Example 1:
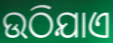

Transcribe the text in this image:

ଉଠିଯାଏ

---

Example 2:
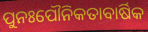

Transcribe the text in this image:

ପୁନଃପୌନିକତାବାର୍ଷିକ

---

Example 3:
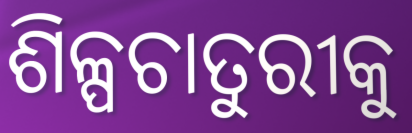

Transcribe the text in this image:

ଶିଳ୍ପଚାତୁରୀକୁ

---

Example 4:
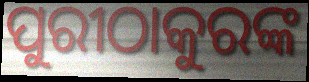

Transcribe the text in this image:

ପୁରୀଠାକୁରଙ୍କ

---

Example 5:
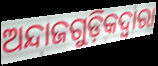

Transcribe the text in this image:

ଅନ୍ଦାଜଗୁଡ଼ିକଦ୍ୱାରା